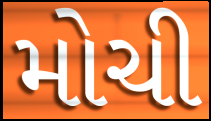
મોચી